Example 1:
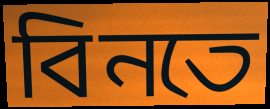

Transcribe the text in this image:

বিনতে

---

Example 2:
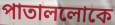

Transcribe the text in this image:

পাতাললোকে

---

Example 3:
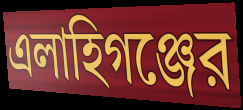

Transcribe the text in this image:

এলাহিগঞ্জের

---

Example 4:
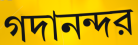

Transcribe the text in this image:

গদানন্দর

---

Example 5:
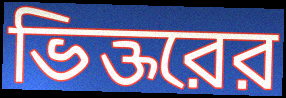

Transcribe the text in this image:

ভিক্তরের